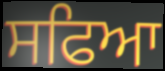
ਸਫਿਆ